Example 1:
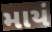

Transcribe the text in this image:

માયં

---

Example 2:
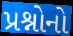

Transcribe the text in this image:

પ્રશ્નોનો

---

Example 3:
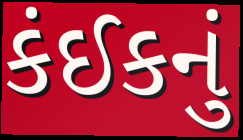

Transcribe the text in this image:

કંઈકનું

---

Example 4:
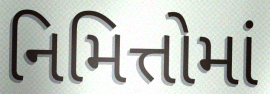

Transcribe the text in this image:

નિમિત્તોમાં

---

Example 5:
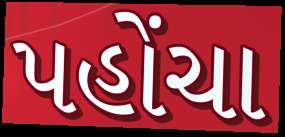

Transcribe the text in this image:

પહોંચા